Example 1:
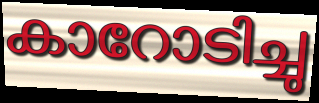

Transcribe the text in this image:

കാറോടിച്ചു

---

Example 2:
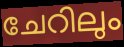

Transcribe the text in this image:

ചേറിലും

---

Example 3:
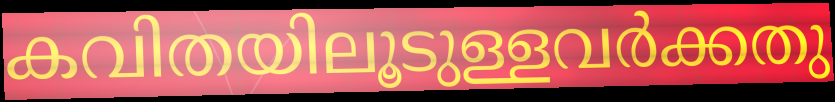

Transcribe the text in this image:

കവിതയിലൂടുള്ളവർക്കതു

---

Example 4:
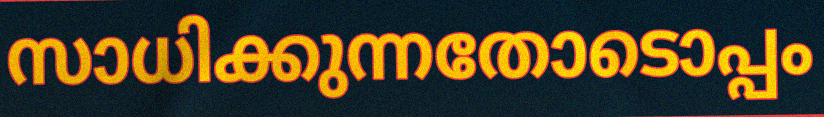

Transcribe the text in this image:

സാധിക്കുന്നതോടൊപ്പം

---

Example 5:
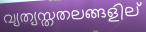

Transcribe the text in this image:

വ്യത്യസ്തതലങ്ങളില്